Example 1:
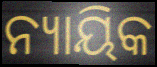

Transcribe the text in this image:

ନ୍ୟାୟିକ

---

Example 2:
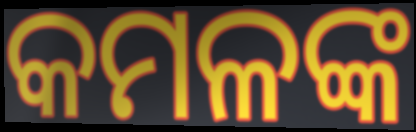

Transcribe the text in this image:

କମଳଙ୍କ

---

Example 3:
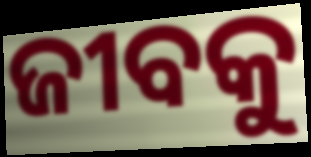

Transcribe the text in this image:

ଜୀବକୁ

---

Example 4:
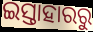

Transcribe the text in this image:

ଇସ୍ତାହାରରୁ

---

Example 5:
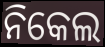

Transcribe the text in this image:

ନିକେଲ